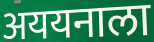
अययनाला